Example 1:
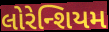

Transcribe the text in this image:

લોરેન્શિયમ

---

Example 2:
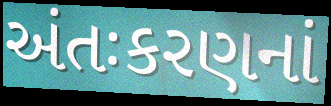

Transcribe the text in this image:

અંતઃકરણનાં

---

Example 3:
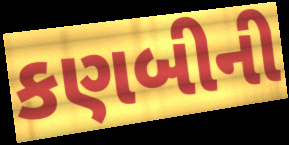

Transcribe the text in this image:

કણબીની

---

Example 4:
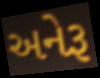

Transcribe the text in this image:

અનેરૂ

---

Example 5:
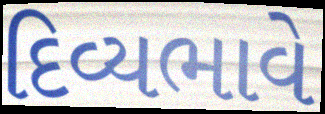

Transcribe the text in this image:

દિવ્યભાવે